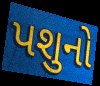
પશુનો